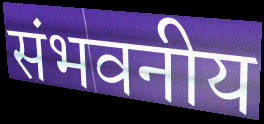
संभवनीय